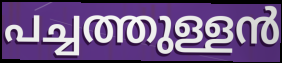
പച്ചത്തുള്ളൻ